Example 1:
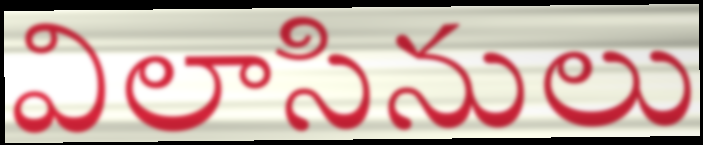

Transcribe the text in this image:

విలాసినులు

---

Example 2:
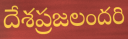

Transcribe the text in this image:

దేశప్రజలందరి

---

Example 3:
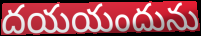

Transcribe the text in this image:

దయయందును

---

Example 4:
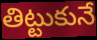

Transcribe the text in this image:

తిట్టుకునే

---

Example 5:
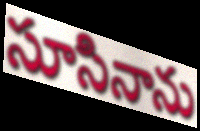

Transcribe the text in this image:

సూసినాను